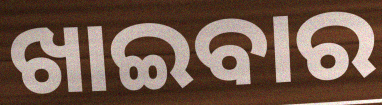
ଖାଇବାର